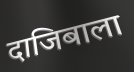
दाजिबाला